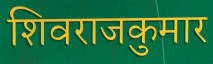
शिवराजकुमार